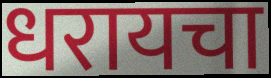
धरायचा